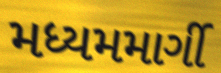
મધ્યમમાર્ગી